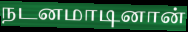
நடனமாடினான்